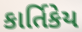
કાર્તિકેય